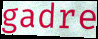
gadre